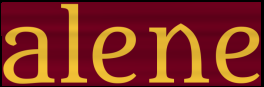
alene